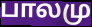
பாலமு